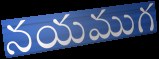
నయముగ